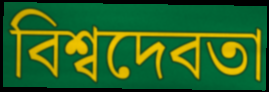
বিশ্বদেবতা